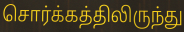
சொர்க்கத்திலிருந்து